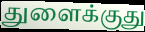
துளைக்குது